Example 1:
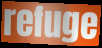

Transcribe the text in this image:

refuge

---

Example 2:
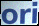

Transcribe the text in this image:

ori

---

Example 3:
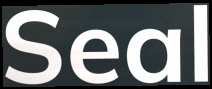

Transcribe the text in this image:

Seal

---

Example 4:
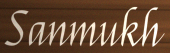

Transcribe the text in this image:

Sanmukh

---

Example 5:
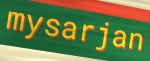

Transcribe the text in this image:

mysarjan